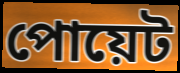
পোয়েট